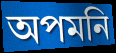
অপমনি